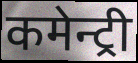
कमेन्ट्री